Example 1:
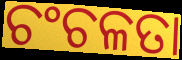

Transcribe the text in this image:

ଚଂଚଳତା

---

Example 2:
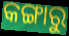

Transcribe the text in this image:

କଙ୍ଗାରୁ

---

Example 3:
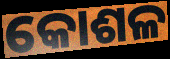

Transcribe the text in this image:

କୋଶଳ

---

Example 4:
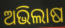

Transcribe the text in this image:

ଅଭିଲାଷ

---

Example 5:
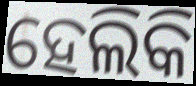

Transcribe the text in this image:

ହେଲିକି